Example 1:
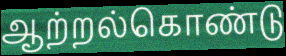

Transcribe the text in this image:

ஆற்றல்கொண்டு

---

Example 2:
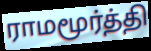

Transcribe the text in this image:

ராமமூர்த்தி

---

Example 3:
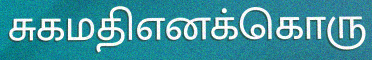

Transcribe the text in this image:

சுகமதிஎனக்கொரு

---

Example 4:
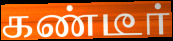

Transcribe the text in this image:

கண்டீர்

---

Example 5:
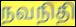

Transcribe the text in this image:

நவநிதி